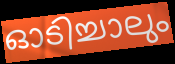
ഓടിച്ചാലും